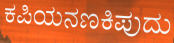
ಕಪಿಯನಣಕಿಪುದು